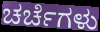
ಚರ್ಚೆಗಳು